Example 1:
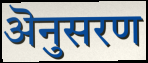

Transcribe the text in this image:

ऄनुसरण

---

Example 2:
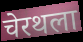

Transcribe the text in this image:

चेरथला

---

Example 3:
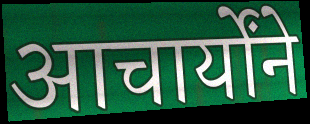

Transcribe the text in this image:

आचार्योंने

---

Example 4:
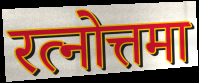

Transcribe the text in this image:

रत्नोत्तमा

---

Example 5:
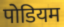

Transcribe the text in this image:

पोडियम